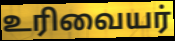
உரிவையர்